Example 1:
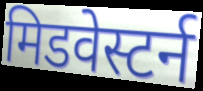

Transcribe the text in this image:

मिडवेस्टर्न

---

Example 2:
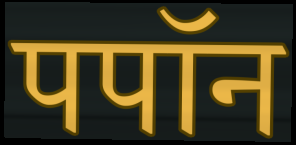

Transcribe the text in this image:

पपॉन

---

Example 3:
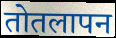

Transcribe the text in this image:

तोतलापन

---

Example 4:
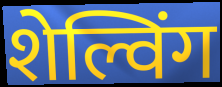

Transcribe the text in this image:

शेल्विंग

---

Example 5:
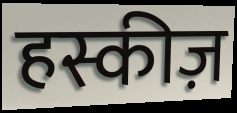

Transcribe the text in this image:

हस्कीज़